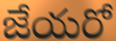
జేయరో